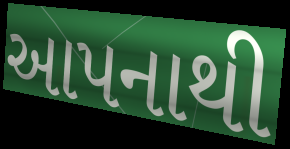
આપનાથી